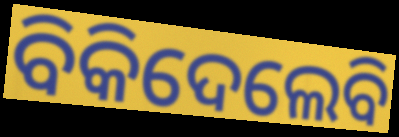
ବିକିଦେଲେବି